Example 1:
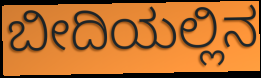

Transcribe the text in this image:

ಬೀದಿಯಲ್ಲಿನ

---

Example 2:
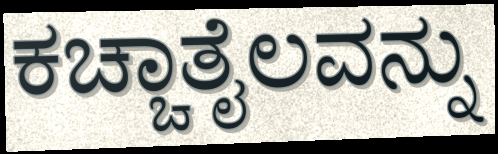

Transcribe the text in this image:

ಕಚ್ಚಾತೈಲವನ್ನು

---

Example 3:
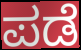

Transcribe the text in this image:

ಪಡೆ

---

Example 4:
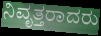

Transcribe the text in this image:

ನಿವೃತ್ತರಾದರು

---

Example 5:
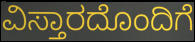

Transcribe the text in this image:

ವಿಸ್ತಾರದೊಂದಿಗೆ